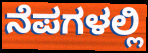
ನೆಪಗಳಲ್ಲಿ